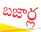
బజార్ల